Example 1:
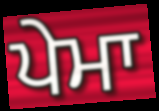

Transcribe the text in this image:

ਪੇਮਾ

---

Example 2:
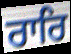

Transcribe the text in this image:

ਰਾਰਿ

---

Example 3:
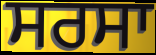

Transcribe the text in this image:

ਸਰਸਾ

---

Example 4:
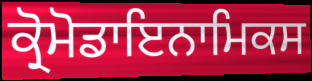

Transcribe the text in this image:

ਕ੍ਰੋਮੋਡਾਇਨਾਮਿਕਸ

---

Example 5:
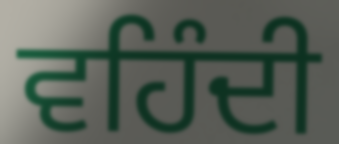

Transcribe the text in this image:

ਵਹਿੰਦੀ